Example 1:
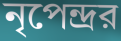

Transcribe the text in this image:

নৃপেন্দ্রর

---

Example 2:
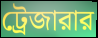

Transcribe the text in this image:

ট্রেজারার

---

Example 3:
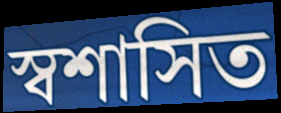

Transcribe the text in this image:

স্বশাসিত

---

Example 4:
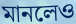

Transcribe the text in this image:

মানলেও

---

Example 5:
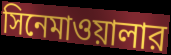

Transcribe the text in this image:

সিনেমাওয়ালার